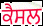
ਕੈਸਲ